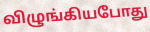
விழுங்கியபோது